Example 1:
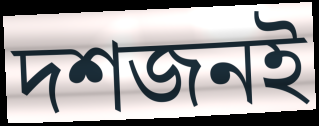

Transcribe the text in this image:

দশজনই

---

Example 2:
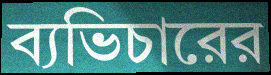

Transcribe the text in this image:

ব্যভিচারের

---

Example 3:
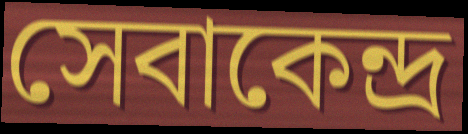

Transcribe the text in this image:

সেবাকেন্দ্র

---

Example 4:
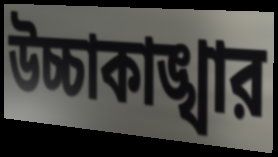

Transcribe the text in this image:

উচ্চাকাঙ্খার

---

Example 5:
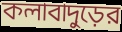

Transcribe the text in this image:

কলাবাদুড়ের